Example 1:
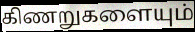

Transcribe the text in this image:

கிணறுகளையும்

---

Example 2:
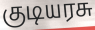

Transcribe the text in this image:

குடியரசு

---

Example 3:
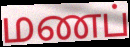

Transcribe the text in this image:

மணப்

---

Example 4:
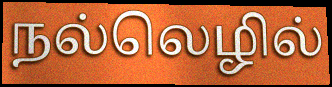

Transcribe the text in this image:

நல்லெழில்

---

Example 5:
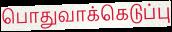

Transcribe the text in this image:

பொதுவாக்கெடுப்பு